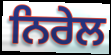
ਨਿਰੇਲ